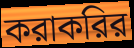
করাকরির